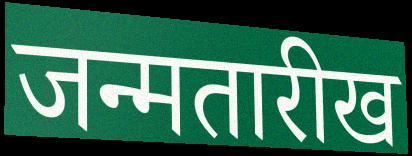
जन्मतारीख